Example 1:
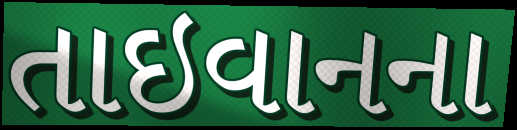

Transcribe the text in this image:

તાઇવાનના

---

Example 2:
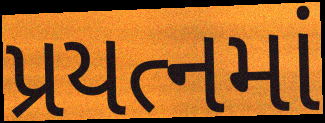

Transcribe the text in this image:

પ્રયત્નમાં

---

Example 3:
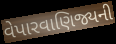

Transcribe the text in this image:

વેપારવાણિજ્યની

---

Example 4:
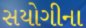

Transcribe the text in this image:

સયોગીના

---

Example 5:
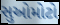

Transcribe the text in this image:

સુઓમોટો